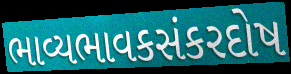
ભાવ્યભાવકસંકરદોષ